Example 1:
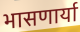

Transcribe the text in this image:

भासणार्या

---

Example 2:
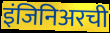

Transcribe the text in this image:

इंजिनिअरची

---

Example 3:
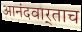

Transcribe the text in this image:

आनंदवार्ताच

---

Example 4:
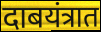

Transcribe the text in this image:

दाबयंत्रात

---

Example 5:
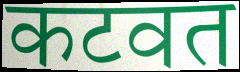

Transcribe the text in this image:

कटवत